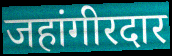
जहांगीरदार